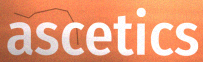
ascetics